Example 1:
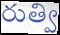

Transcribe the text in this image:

రుత్వి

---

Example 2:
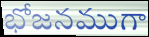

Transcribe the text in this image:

భోజనముగా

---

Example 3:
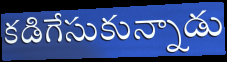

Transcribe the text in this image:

కడిగేసుకున్నాడు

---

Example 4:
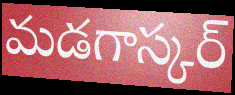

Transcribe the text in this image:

మడగాస్కర్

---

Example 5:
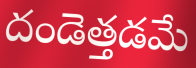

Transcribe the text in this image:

దండెత్తడమే